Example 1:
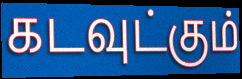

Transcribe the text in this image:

கடவுட்கும்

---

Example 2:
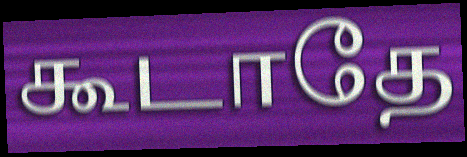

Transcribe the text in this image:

கூடாதே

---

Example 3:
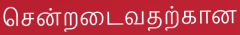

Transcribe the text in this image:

சென்றடைவதற்கான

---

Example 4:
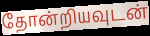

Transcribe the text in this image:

தோன்றியவுடன்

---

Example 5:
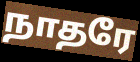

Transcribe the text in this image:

நாதரே